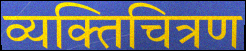
व्यक्तिचित्रण